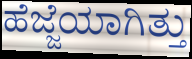
ಹೆಜ್ಜೆಯಾಗಿತ್ತು